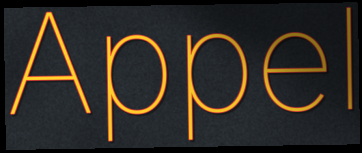
Appel